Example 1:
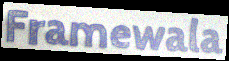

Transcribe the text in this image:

Framewala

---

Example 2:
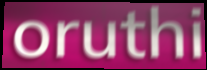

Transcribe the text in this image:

oruthi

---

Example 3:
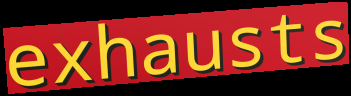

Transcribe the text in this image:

exhausts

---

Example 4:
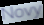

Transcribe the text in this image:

Novy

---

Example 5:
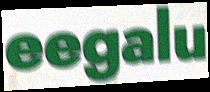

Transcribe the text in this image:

eegalu